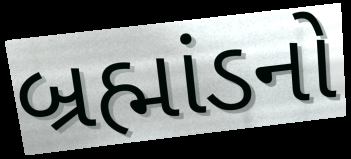
બ્રહ્માંડનો